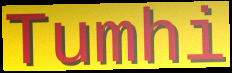
Tumhi